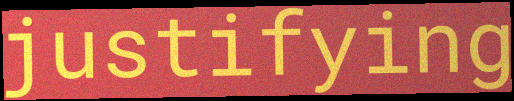
justifying